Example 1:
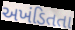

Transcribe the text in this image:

અખંડિતતા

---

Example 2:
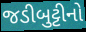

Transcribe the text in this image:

જડીબુટ્ટીનો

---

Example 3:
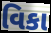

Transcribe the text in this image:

વિકા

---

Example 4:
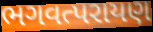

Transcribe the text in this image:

ભગવત્પરાયણ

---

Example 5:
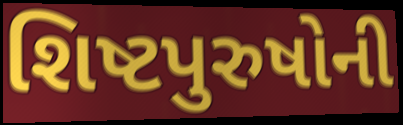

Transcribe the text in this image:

શિષ્ટપુરુષોની